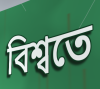
বিশ্বতে